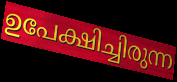
ഉപേക്ഷിച്ചിരുന്ന